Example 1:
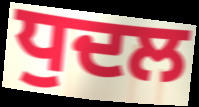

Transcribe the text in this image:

ਧੁਦਲ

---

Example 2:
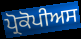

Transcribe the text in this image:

ਪ੍ਰੋਕੋਪੀਅਸ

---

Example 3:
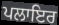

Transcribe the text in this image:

ਪਲਾਇਰ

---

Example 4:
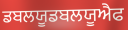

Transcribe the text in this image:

ਡਬਲਯੂਡਬਲਯੂਐਫ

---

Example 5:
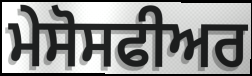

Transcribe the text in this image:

ਮੇਸੋਸਫੀਅਰ